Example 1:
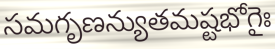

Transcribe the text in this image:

సమగృణన్యుతమష్టభోగైః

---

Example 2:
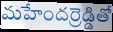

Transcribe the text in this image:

మహేందర్రెడ్డితో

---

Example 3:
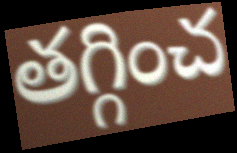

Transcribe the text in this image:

తగ్గించ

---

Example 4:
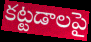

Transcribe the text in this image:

కట్టడాలపై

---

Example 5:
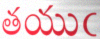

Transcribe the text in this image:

తయుఁ